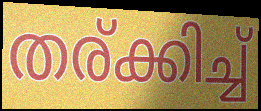
തര്ക്കിച്ച്